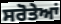
ਸਰੋਤੇਆਂ